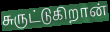
சுருட்டுகிறான்